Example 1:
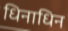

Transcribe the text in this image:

धिनाधिन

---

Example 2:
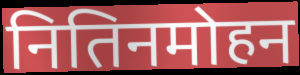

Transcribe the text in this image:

नितिनमोहन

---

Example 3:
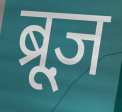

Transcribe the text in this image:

ब्रूज़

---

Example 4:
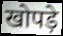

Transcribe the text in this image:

खोपड़े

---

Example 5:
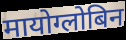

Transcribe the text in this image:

मायोग्लोबिन